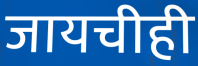
जायचीही